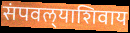
संपवल्याशिवाय